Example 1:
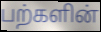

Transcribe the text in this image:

பற்களின்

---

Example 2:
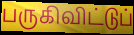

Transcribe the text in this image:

பருகிவிட்டுப்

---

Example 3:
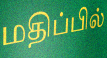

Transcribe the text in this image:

மதிப்பில்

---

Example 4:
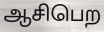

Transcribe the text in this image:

ஆசிபெற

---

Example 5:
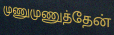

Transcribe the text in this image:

முணுமுணுத்தேன்